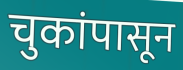
चुकांपासून